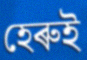
হেৰুই